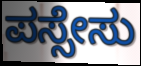
ಪಸ್ಸೇಸು